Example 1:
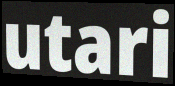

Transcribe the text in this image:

utari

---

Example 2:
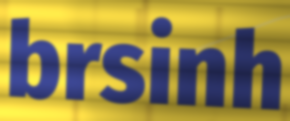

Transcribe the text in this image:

brsinh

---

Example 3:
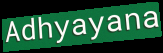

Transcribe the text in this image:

Adhyayana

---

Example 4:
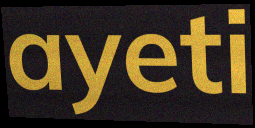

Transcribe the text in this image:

ayeti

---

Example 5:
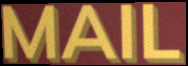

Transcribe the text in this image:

MAIL